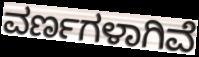
ವರ್ಣಗಳಾಗಿವೆ